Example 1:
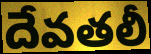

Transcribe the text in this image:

దేవతలీ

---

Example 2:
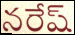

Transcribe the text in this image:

నరేష్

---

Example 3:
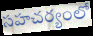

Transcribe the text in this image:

సహచర్యంలో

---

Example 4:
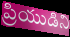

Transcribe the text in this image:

ప్రియుడిని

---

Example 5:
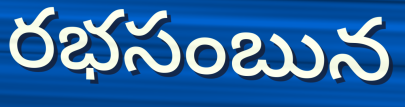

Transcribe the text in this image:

రభసంబున